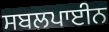
ਸਬਲਪਾਈਨ